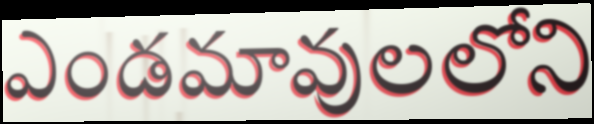
ఎండమావులలోని